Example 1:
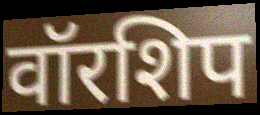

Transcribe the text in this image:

वॉरशिप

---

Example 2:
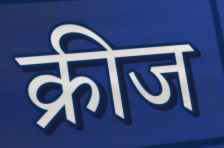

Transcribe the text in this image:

क्रीज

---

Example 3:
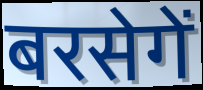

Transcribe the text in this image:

बरसेगें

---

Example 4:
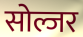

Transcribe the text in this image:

सोल्जर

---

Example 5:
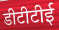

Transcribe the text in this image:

डीटीटीई